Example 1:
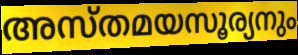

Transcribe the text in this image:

അസ്തമയസൂര്യനും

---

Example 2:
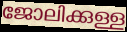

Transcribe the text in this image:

ജോലിക്കുള്ള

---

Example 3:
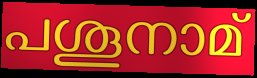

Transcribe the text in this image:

പശൂനാമ്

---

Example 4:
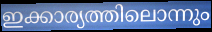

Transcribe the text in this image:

ഇക്കാര്യത്തിലൊന്നും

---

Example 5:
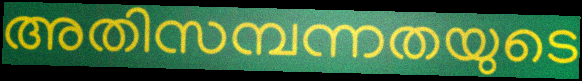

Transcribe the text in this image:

അതിസമ്പന്നതയുടെ